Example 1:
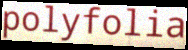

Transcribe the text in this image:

polyfolia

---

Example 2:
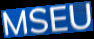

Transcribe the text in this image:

MSEU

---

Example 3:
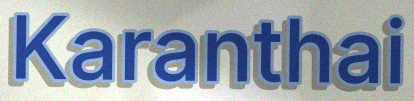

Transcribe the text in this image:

Karanthai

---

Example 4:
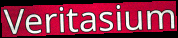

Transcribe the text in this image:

Veritasium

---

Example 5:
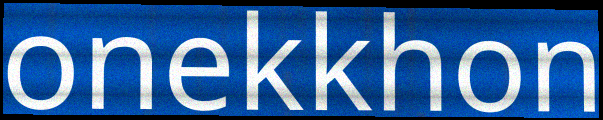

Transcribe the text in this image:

onekkhon